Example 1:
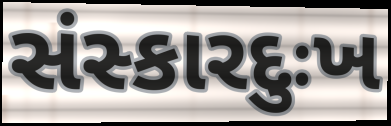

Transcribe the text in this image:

સંસ્કારદુઃખ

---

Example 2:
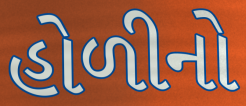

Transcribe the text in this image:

હોળીનો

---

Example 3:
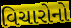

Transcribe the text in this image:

વિચારોનો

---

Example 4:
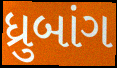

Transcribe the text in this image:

ધ્રુબાંગ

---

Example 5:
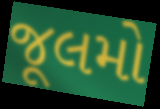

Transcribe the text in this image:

જૂલમો